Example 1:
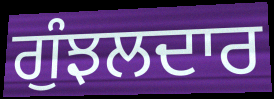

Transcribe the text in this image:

ਗੁੰਝਲਦਾਰ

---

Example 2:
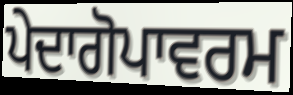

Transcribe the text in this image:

ਪੇਦਾਗੋਪਾਵਰਮ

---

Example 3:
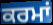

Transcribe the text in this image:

ਕਰਮਾਂ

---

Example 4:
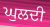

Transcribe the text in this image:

ਘੁਲਦੀ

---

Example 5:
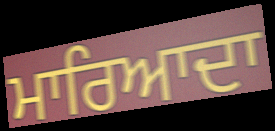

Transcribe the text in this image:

ਮਾਰਿਆਦਾ